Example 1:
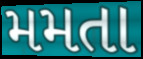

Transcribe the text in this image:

મમતા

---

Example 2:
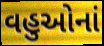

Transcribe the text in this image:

વહુઓનાં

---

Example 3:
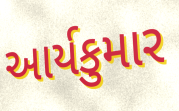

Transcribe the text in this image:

આર્યકુમાર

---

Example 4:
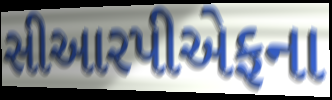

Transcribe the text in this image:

સીઆરપીએફના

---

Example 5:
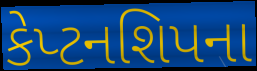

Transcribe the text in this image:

કેપ્ટનશિપના